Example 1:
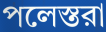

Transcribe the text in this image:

পলেস্তরা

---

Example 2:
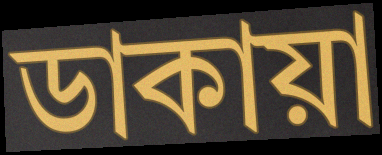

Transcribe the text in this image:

ডাকায়া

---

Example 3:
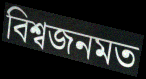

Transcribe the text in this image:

বিশ্বজনমত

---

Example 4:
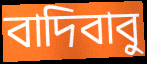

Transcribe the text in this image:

বাদিবাবু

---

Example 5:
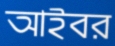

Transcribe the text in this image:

আইবর